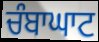
ਚੰਬਾਘਾਟ